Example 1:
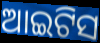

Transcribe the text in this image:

ଆଇଟିସ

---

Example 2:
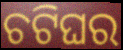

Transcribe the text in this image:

ଚଟିଘର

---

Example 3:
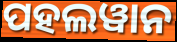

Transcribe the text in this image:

ପହଲୱାନ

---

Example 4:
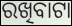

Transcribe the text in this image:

ରଖିବାଟା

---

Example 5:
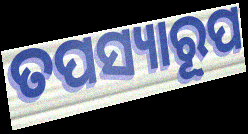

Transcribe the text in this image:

ତପସ୍ୟାରୂପ